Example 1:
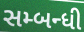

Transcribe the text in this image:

સમ્બન્ધી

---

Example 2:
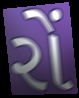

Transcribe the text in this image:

રોં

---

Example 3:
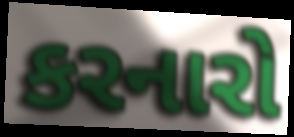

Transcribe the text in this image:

કરનારો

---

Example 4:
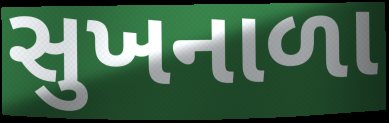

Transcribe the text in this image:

સુખનાળા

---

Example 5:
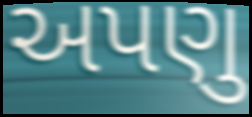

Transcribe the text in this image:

અપણુ